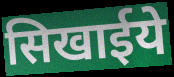
सिखाईये